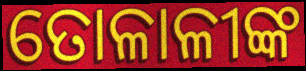
ତୋଳାଳୀଙ୍କ